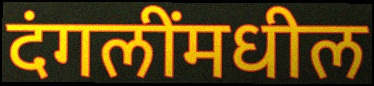
दंगलींमधील